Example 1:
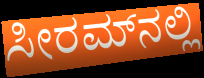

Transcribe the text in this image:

ಸೀರಮ್‌ನಲ್ಲಿ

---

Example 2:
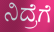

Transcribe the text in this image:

ನಿದ್ರೆಗೆ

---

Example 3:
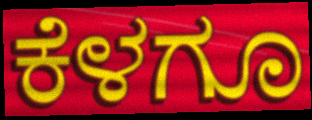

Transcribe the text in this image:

ಕೆಳಗೂ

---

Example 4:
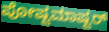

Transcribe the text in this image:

ಪೋಷ್ಟಮಾಷ್ಟರ್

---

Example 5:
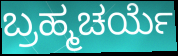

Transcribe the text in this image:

ಬ್ರಹ್ಮಚರ್ಯೆ